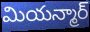
మియన్మార్